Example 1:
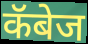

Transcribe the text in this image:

कॅबेज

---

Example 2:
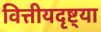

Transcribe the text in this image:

वित्तीयदृष्ट्या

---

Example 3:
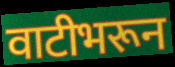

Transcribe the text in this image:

वाटीभरून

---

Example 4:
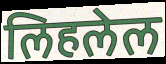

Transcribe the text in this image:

लिहलेल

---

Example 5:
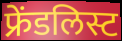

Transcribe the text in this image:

फ्रेंडलिस्ट